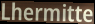
Lhermitte